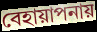
বেহায়াপনায়